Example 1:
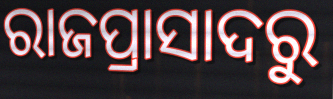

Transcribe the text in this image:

ରାଜପ୍ରାସାଦରୁ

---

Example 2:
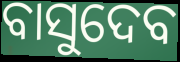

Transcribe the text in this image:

ବାସୁଦେବ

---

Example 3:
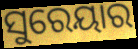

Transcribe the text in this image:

ସୁରେୟାର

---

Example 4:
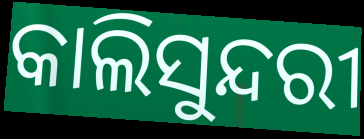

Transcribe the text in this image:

କାଲିସୁନ୍ଦରୀ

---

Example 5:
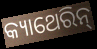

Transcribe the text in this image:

କ୍ୟାଥେରିନ୍